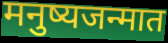
मनुष्यजन्मात